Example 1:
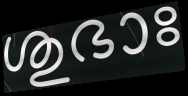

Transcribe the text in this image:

ശുഭാഃ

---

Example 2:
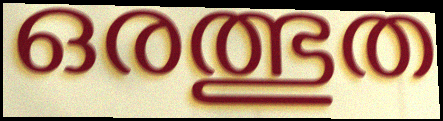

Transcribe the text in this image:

ഒരത്ഭുത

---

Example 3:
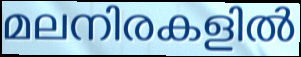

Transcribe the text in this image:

മലനിരകളിൽ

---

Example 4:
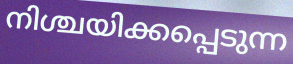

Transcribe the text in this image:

നിശ്ചയിക്കപ്പെടുന്ന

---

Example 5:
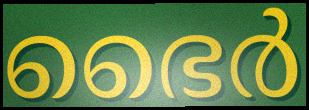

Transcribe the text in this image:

ഭൈർ